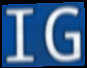
IG